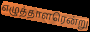
எழுத்தாளரென்று